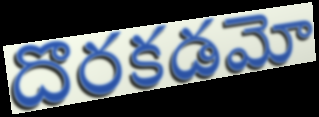
దొరకడమో